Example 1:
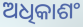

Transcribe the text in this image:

ଅଧିକାଶଂ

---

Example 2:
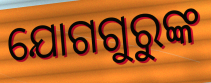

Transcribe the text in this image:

ଯୋଗଗୁରୁଙ୍କ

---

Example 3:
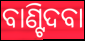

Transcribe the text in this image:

ବାଣ୍ଟିଦବା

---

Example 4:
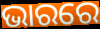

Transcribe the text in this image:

ଭାରରେ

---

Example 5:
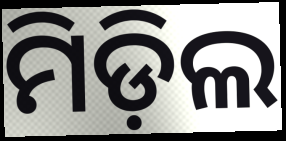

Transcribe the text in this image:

ମିଡ଼ିଲ